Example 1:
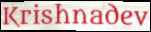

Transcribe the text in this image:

Krishnadev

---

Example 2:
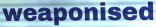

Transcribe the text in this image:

weaponised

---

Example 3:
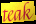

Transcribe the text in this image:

teak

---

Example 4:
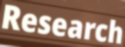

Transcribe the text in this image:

Research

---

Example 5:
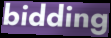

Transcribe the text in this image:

bidding